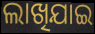
ଲାଖିଯାଇ